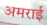
अमराई